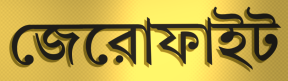
জেরোফাইট